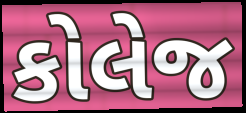
કોલેજ